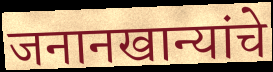
जनानखान्यांचे